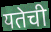
यतेची